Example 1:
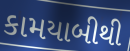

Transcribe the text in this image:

કામયાબીથી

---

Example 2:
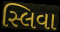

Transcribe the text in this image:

સ્લિવા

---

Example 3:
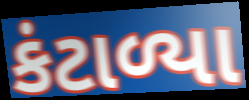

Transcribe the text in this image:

કંટાળ્યા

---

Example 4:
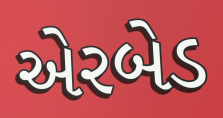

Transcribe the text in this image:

એરબેડ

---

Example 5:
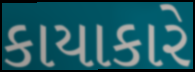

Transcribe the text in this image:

કાયાકારે